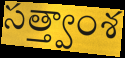
సత్త్వాంశ